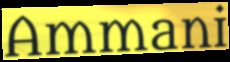
Ammani